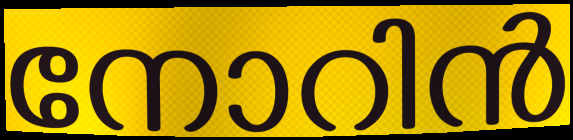
നോറിൻ